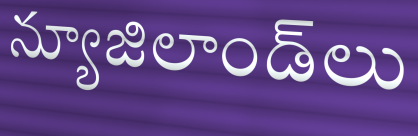
న్యూజిలాండ్‌లు